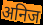
अनिज